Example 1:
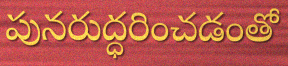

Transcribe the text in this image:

పునరుద్ధరించడంతో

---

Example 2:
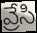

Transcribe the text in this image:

వ్రేసి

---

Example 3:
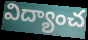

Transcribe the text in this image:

విద్యాంచ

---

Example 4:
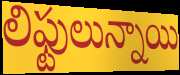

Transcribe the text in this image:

లిఫ్టులున్నాయి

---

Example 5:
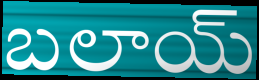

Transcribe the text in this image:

బలాయ్